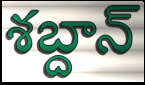
శబ్దాన్